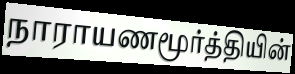
நாராயணமூர்த்தியின்